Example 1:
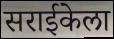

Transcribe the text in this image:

सराईकेला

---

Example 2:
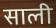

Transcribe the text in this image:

साली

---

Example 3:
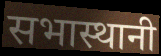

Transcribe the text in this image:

सभास्थानी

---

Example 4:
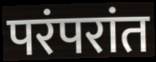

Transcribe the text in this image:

परंपरांत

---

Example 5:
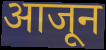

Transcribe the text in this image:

आजून